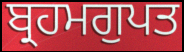
ਬ੍ਰਹਮਗੁਪਤ